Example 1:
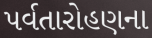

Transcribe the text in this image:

પર્વતારોહણના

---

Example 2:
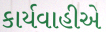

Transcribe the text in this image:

કાર્યવાહીએ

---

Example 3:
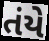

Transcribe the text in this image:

તંયે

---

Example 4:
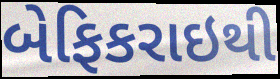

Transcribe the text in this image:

બેફિકરાઇથી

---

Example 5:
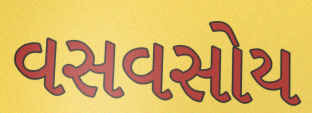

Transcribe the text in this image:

વસવસોય